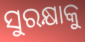
ସୁରକ୍ଷାକୁ